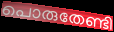
പൊരുതേണ്ടി